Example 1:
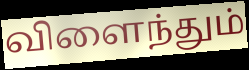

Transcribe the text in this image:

விளைந்தும்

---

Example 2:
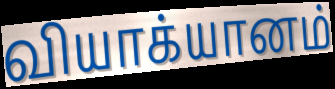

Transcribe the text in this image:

வியாக்யானம்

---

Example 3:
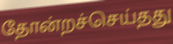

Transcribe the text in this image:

தோன்றச்செய்தது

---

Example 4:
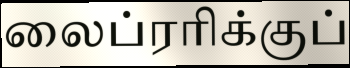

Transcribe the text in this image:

லைப்ரரிக்குப்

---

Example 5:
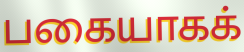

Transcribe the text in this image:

பகையாகக்